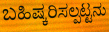
ಬಹಿಷ್ಕರಿಸಲ್ಪಟ್ಟನು